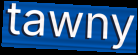
tawny